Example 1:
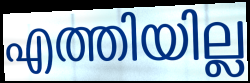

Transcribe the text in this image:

എത്തിയില്ല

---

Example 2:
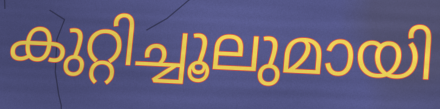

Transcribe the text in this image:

കുറ്റിച്ചൂലുമായി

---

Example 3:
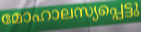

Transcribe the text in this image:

മോഹാലസ്യപ്പെട്ടു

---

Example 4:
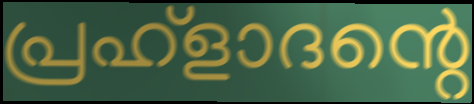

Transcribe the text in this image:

പ്രഹ്ളാദന്റെ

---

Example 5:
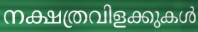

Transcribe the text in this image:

നക്ഷത്രവിളക്കുകൾ